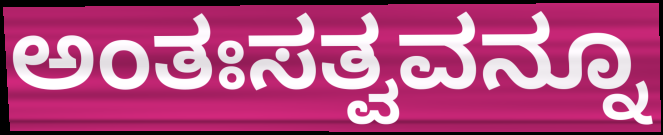
ಅಂತಃಸತ್ವವನ್ನೂ